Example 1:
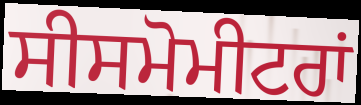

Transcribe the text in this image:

ਸੀਸਮੋਮੀਟਰਾਂ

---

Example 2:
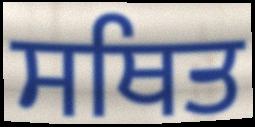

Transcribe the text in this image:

ਸਥਿਤ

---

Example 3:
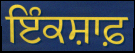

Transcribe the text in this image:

ਇੰਕਸ਼ਾਫ਼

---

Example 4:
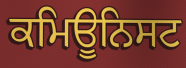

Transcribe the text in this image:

ਕਮਿਊਨਿਸਟ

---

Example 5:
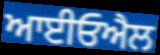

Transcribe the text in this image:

ਆਈਓਐਲ